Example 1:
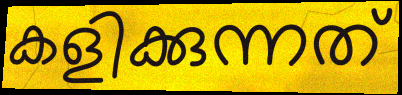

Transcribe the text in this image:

കളിക്കുന്നത്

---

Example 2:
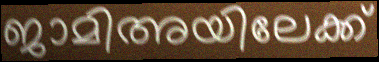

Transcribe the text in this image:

ജാമിഅയിലേക്ക്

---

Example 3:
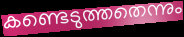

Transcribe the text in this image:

കണ്ടെടുത്തതെന്നും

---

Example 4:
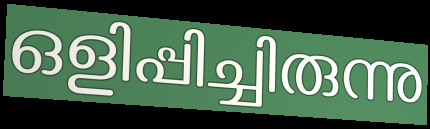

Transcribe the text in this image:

ഒളിപ്പിച്ചിരുന്നു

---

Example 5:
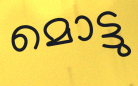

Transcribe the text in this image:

മൊട്ടു